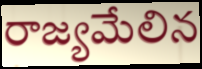
రాజ్యమేలిన